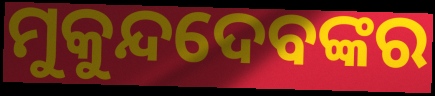
ମୁକୁନ୍ଦଦେବଙ୍କର